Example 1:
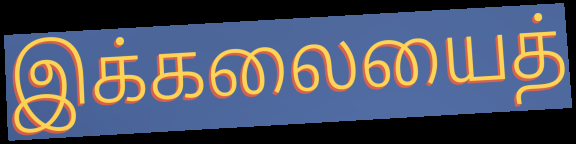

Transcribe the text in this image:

இக்கலையைத்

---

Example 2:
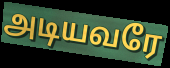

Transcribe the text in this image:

அடியவரே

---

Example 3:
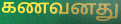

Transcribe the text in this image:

கணவனது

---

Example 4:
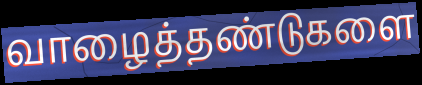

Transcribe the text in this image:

வாழைத்தண்டுகளை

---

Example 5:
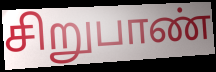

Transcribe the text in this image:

சிறுபாண்